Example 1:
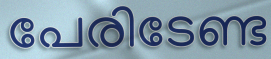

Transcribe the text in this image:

പേരിടേണ്ട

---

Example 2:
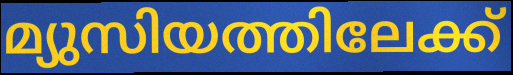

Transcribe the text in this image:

മ്യുസിയത്തിലേക്ക്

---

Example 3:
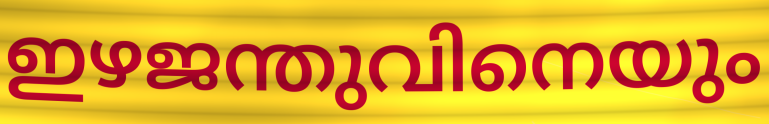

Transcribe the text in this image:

ഇഴജന്തുവിനെയും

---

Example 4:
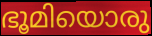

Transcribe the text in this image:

ഭൂമിയൊരു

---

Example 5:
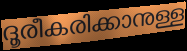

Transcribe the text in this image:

ദൂരീകരിക്കാനുള്ള